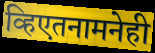
व्हिएतनामनेही